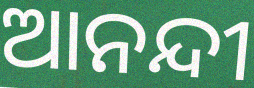
ଆନନ୍ଦୀ